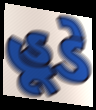
હૂડે